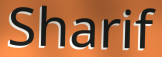
Sharif